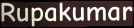
Rupakumar